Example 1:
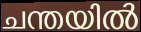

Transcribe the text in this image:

ചന്തയിൽ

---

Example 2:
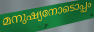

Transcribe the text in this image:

മനുഷ്യനോടൊപ്പം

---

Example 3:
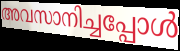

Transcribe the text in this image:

അവസാനിച്ചപ്പോൾ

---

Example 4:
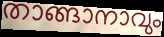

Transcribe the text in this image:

താങ്ങാനാവും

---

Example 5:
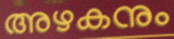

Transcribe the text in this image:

അഴകനും